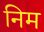
निम